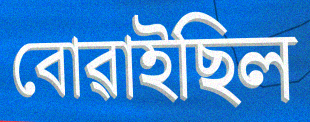
বোৱাইছিল